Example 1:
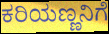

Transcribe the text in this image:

ಕರಿಯಣ್ಣನಿಗೆ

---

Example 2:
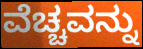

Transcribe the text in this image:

ವೆಚ್ಚವನ್ನು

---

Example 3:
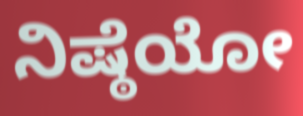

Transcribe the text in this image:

ನಿಷ್ಠೆಯೋ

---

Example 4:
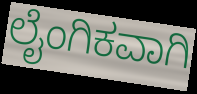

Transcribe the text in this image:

ಲೈಂಗಿಕವಾಗಿ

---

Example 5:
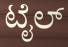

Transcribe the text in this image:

ಟೈಲ್